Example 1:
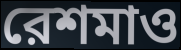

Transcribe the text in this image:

রেশমাও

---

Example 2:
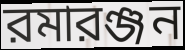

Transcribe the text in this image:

রমারঞ্জন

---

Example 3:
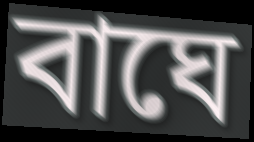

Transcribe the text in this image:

বাঘে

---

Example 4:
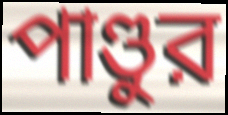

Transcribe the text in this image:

পাণ্ডুর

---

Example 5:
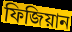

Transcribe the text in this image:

ফিজিয়ান